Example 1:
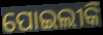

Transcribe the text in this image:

ପୋଇଲୀକି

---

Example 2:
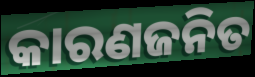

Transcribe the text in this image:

କାରଣଜନିତ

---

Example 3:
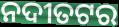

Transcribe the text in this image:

ନଦୀତଟର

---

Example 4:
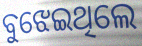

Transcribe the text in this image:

ବୁଝେଇଥିଲେ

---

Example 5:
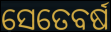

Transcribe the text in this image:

ସେତେବର୍ଷ